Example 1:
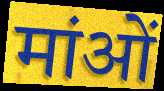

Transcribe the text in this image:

मांओं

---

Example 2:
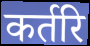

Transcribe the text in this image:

कर्तरि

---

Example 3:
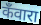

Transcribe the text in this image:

कँवारा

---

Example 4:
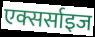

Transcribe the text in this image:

एक्सर्साइज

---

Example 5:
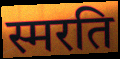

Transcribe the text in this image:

स्मरति